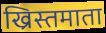
ख्रिस्तमाता